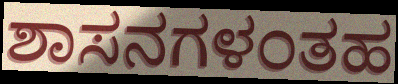
ಶಾಸನಗಳಂತಹ